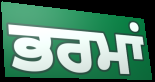
ਭਰਮਾਂ